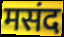
मसंद